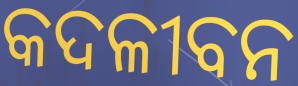
କଦଳୀବନ